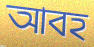
আবহ